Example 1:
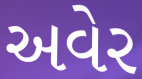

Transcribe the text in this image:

અવેર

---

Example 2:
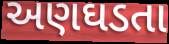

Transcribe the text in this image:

અણઘડતા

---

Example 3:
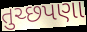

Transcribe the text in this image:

તુચ્છપણા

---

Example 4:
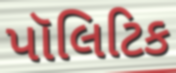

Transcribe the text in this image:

પૉલિટિક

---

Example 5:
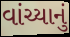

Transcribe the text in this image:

વાંચ્યાનું